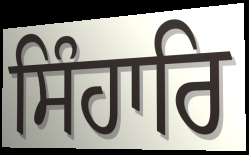
ਸਿੰਹਾਰਿ